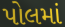
પોલમાં